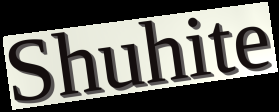
Shuhite